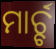
ମାର୍ଚ୍ଚ